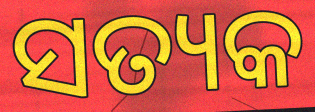
ସତ୍ୟକ